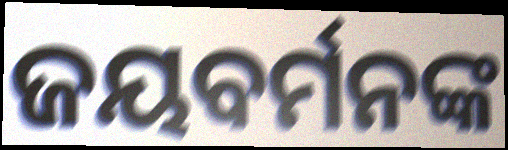
ଜୟବର୍ମନଙ୍କ